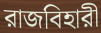
রাজবিহারী